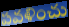
పవళించు